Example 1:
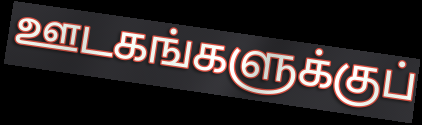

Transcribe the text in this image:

ஊடகங்களுக்குப்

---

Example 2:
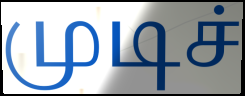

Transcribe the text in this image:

முடிச்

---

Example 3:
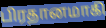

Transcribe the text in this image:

பிரதானமாகி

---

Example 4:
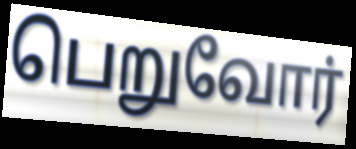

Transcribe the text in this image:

பெறுவோர்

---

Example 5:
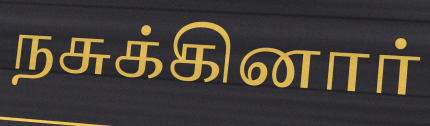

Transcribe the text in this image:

நசுக்கினார்